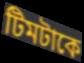
টিমটাকে